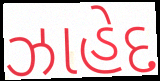
ઝાહેદ